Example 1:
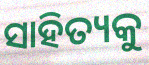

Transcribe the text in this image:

ସାହିତ୍ୟକୁ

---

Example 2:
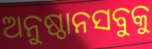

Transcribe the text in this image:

ଅନୁଷ୍ଠାନସବୁକୁ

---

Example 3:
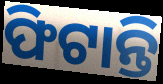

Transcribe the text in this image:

ଫିଟାନ୍ତି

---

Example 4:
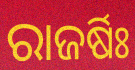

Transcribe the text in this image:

ରାଜର୍ଷିଃ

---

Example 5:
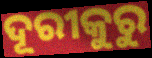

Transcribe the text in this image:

ଦୂରୀକୁରୁ